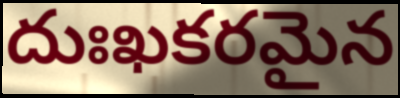
దుఃఖకరమైన